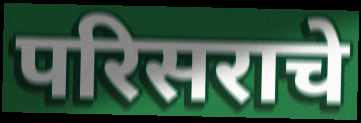
परिसराचे